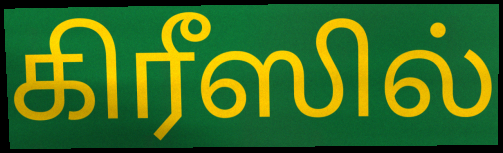
கிரீஸில்